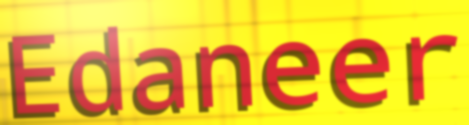
Edaneer